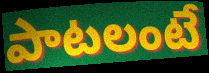
పాటలంటే